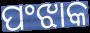
ପଂଝାକ